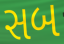
સબ